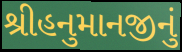
શ્રીહનુમાનજીનું